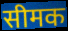
सीमक